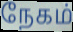
நேகம்